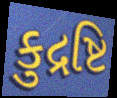
કુદ્રષ્ટિ